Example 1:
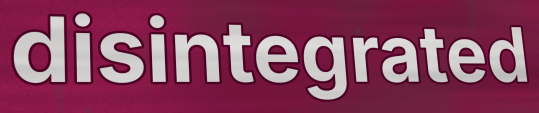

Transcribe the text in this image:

disintegrated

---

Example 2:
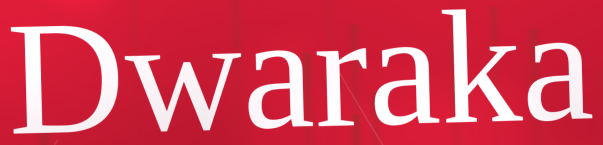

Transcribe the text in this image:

Dwaraka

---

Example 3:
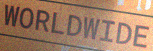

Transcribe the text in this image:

WORLDWIDE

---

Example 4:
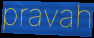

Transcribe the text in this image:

pravah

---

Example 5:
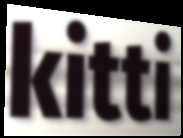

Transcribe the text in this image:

kitti